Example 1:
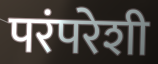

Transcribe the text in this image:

परंपरेशी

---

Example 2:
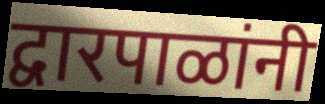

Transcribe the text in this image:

द्वारपाळांनी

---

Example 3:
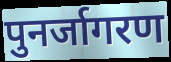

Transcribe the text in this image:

पुनर्जागरण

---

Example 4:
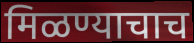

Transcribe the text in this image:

मिळण्याचाच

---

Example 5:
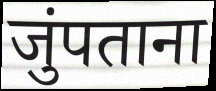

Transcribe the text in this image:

जुंपताना